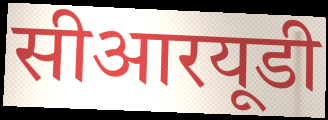
सीआरयूडी